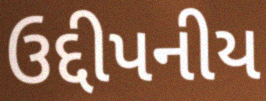
ઉદ્દીપનીય